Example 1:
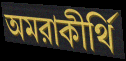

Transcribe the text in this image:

অমরাকীর্থি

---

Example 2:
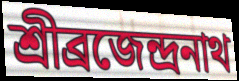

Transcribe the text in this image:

শ্রীব্রজেন্দ্রনাথ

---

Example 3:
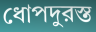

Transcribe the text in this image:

ধোপদুরস্ত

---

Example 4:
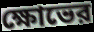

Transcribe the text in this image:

ক্ষোভের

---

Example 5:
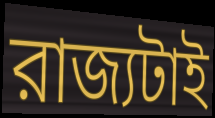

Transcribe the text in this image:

রাজ্যটাই